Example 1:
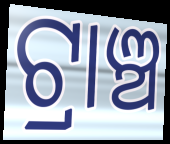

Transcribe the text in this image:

ଟ୍ରାଞ୍ଚ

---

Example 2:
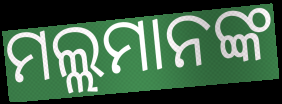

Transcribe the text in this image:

ମଲ୍ଲମାନଙ୍କ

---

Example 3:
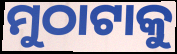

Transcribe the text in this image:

ମୁଠାଟାକୁ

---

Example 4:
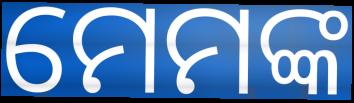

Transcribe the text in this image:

ମେମଙ୍କ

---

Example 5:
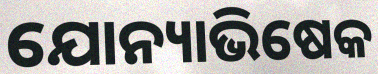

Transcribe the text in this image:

ଯୋନ୍ୟାଭିଷେକ